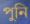
পুনি